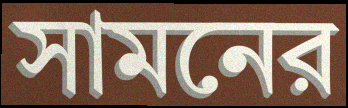
সামনের